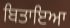
ਬਿਤਾਇਆ